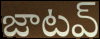
జాటవ్